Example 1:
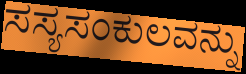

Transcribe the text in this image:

ಸಸ್ಯಸಂಕುಲವನ್ನು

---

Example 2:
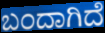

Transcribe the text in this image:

ಬಂದಾಗಿದೆ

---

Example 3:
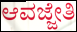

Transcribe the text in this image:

ಆವಜ್ಜೇತಿ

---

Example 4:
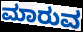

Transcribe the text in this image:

ಮಾರುವ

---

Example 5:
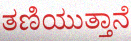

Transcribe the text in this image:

ತಣಿಯುತ್ತಾನೆ